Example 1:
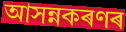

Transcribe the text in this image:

আসন্নকৰণৰ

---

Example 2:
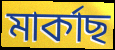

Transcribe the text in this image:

মাৰ্কাছ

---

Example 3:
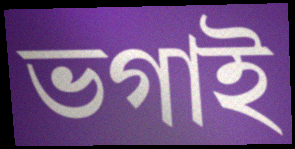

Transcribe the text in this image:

ভগাই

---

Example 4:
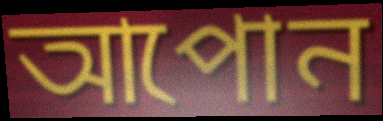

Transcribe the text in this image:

আপোন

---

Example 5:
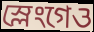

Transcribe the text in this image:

স্লেংগেও